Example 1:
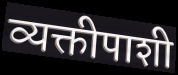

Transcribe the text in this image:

व्यक्तीपाशी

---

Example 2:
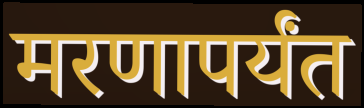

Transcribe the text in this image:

मरणापर्यंत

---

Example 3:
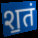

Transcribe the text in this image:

श॒तं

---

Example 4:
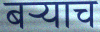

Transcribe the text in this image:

बऱ्याच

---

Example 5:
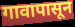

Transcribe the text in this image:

गावापासून